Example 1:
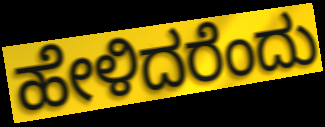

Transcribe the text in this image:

ಹೇಳಿದರೆಂದು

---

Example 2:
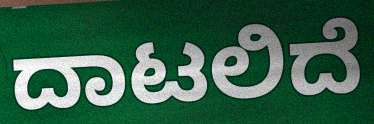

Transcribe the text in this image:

ದಾಟಲಿದೆ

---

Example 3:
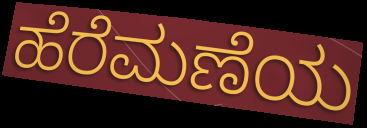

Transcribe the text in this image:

ಹೆರೆಮಣೆಯ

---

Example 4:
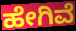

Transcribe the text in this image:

ಹೇಗಿವೆ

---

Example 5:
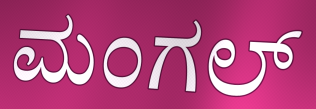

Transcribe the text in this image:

ಮಂಗಲ್